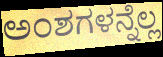
ಅಂಶಗಳನ್ನೆಲ್ಲ